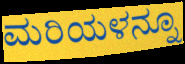
ಮರಿಯಳನ್ನೂ